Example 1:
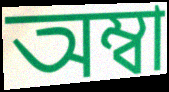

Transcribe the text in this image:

অম্বা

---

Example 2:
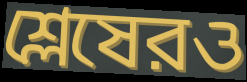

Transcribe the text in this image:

শ্লেষেরও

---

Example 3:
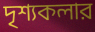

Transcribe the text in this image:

দৃশ্যকলার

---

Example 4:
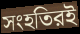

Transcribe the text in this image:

সংহতিরই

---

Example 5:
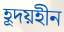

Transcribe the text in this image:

হূদয়হীন